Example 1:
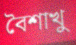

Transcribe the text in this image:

বৈশাখু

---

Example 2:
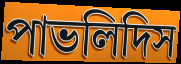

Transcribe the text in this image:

পাভলিদিস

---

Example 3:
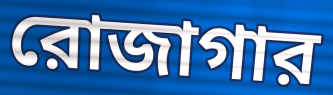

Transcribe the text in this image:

রোজাগার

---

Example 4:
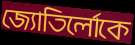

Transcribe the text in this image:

জ্যোতির্লোকে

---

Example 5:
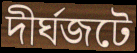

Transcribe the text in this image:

দীর্ঘজটে